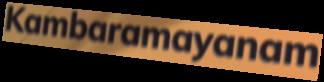
Kambaramayanam